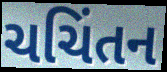
ચચિંતન